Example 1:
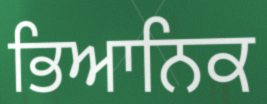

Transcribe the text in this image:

ਭਿਆਨਿਕ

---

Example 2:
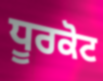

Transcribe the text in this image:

ਧੂਰਕੋਟ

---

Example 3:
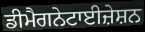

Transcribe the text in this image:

ਡੀਮੈਗਨੇਟਾਈਜ਼ੇਸ਼ਨ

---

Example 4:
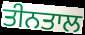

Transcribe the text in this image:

ਤੀਨਤਾਲ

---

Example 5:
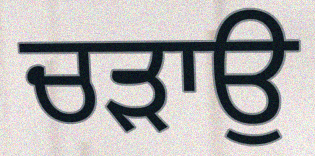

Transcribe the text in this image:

ਚੜਾਉ